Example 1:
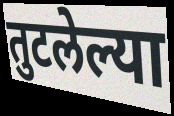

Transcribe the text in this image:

तुटलेल्या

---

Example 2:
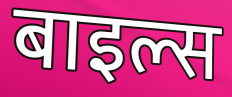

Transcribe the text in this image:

बाइल्स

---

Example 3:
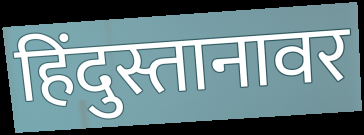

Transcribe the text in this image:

हिंदुस्तानावर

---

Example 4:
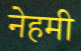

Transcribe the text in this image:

नेहमी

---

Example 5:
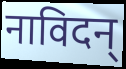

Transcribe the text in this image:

नाविदन्